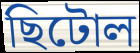
ছিটোল